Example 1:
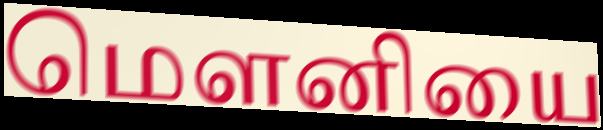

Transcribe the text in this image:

மௌனியை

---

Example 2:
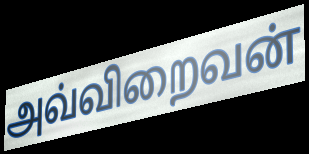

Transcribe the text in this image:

அவ்விறைவன்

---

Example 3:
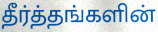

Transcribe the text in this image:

தீர்த்தங்களின்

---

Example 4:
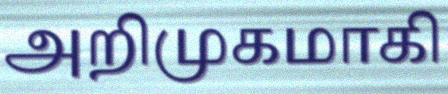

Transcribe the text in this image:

அறிமுகமாகி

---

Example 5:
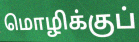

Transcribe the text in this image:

மொழிக்குப்